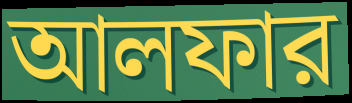
আলফার